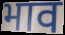
भाव